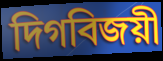
দিগবিজয়ী